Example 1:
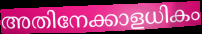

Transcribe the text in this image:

അതിനേക്കാളധികം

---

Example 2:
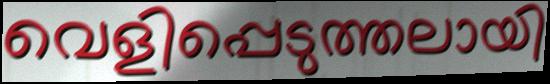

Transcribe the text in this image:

വെളിപ്പെടുത്തലായി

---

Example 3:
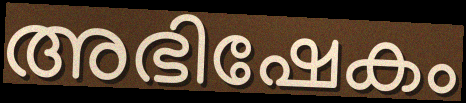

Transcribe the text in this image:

അഭിഷേകം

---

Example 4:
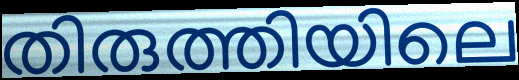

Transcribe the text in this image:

തിരുത്തിയിലെ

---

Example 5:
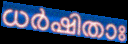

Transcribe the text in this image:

ധർഷിതാഃ